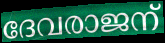
ദേവരാജന്